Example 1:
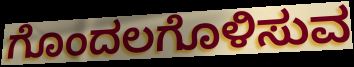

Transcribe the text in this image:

ಗೊಂದಲಗೊಳಿಸುವ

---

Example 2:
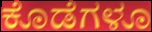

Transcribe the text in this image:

ಕೊಡೆಗಳೂ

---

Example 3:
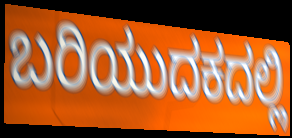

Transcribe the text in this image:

ಬರಿಯುದಕದಲ್ಲಿ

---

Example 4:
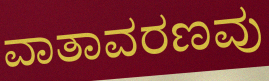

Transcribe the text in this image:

ವಾತಾವರಣವು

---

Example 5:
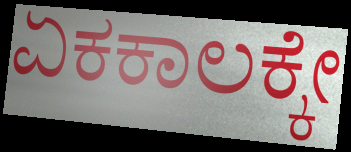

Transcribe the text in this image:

ಏಕಕಾಲಕ್ಕೇ